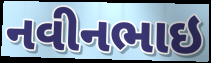
નવીનભાઇ